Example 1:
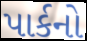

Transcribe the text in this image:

પાર્કનો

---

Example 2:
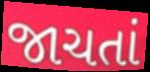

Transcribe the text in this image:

જાચતાં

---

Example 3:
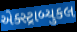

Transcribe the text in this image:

એક્સ્ટ્રાબ્યુકલ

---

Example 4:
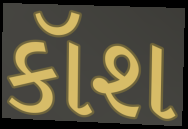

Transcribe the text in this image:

કૉશ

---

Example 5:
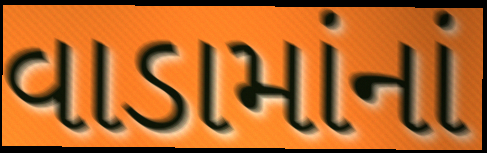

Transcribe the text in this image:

વાડામાંનાં